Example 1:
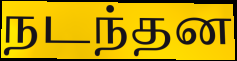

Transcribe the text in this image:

நடந்தன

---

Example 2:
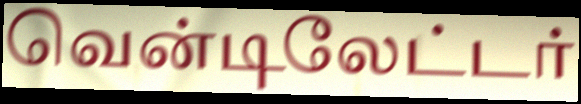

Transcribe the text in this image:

வென்டிலேட்டர்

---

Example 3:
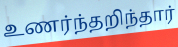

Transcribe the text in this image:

உணர்ந்தறிந்தார்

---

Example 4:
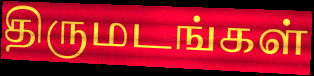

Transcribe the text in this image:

திருமடங்கள்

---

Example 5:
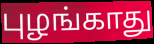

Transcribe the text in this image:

புழங்காது